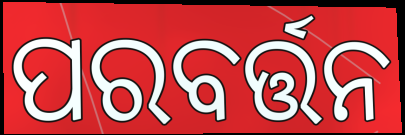
ପରବର୍ତ୍ତନ